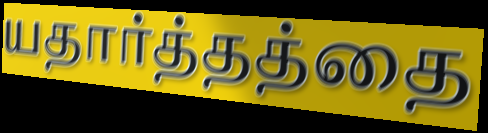
யதார்த்தத்தை